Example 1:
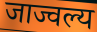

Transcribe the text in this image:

जाज्वल्य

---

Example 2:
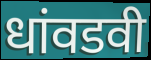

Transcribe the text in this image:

धांवडवी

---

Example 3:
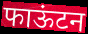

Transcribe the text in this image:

फाऊंटन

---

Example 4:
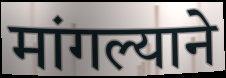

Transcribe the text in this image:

मांगल्याने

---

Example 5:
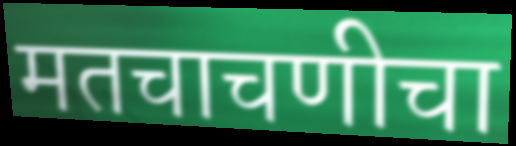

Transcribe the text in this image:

मतचाचणीचा